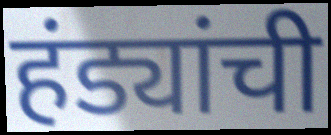
हंड्यांची